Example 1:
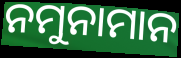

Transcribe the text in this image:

ନମୁନାମାନ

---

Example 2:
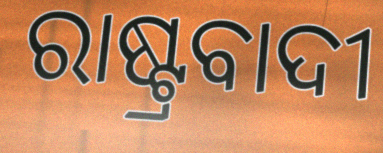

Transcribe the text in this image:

ରାଷ୍ଟ୍ରବାଦୀ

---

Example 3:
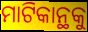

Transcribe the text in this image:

ମାଟିକାନ୍ଥକୁ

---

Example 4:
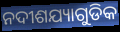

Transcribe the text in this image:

ନଦୀଶଯ୍ୟାଗୁଡିକ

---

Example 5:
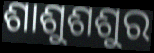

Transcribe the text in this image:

ଶାଶୁଶଶୁର